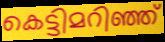
കെട്ടിമറിഞ്ഞ്